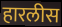
हारलीस